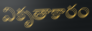
వికృతాకారం